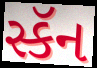
સ્કૅન